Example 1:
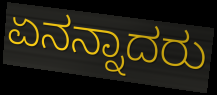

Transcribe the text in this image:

ಏನನ್ನಾದರು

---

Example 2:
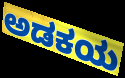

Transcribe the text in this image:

ಅಡಕಯ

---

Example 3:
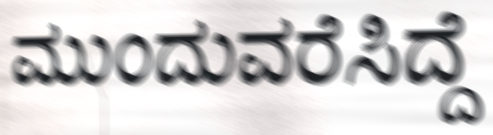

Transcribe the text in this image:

ಮುಂದುವರೆಸಿದ್ದೆ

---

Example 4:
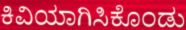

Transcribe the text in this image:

ಕಿವಿಯಾಗಿಸಿಕೊಂಡು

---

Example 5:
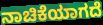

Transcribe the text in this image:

ನಾಚಿಕೆಯಾಗದೆ